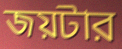
জয়টার